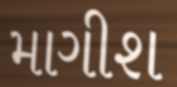
માગીશ